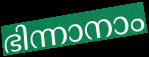
ഭിന്നാനാം